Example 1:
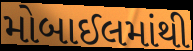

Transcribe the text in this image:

મોબાઈલમાંથી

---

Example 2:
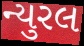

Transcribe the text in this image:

ન્યુરલ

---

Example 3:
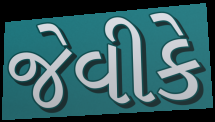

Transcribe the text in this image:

જેવીકે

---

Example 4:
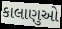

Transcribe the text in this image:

કાલાણુઓ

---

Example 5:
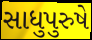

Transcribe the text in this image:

સાધુપુરુષે